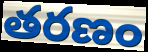
తరణం